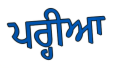
ਪਰ੍ਹੀਆ